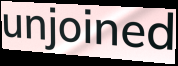
unjoined